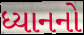
ધ્યાનનો